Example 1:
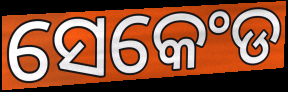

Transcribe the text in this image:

ସେକେଂଡ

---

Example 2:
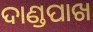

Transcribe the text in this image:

ଦାଣ୍ଡପାଖ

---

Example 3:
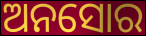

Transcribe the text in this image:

ଅନସୋର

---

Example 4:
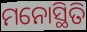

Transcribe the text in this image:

ମନୋସ୍ଥିତି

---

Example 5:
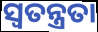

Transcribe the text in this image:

ସ୍ବତନ୍ତ୍ରତା